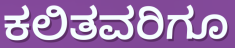
ಕಲಿತವರಿಗೂ